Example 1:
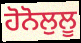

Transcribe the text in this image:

ਹੋਨੋਲੁਲੂ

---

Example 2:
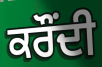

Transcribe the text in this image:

ਕਰੌਂਦੀ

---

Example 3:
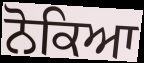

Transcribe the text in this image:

ਨੋਕਿਆ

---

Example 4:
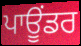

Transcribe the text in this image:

ਪਾਊਂਡਰ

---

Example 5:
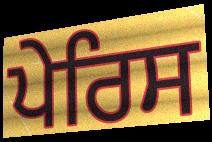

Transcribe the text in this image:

ਪੇਰਿਸ